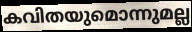
കവിതയുമൊന്നുമല്ല